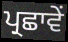
ਪ੍ਰਛਾਵੇਂ